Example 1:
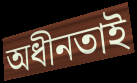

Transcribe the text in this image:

অধীনতাই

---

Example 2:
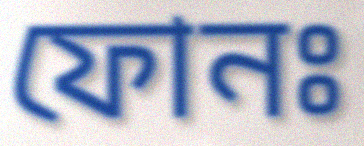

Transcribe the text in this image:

ফোনঃ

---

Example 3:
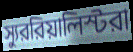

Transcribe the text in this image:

স্যুররিয়ালিস্টরা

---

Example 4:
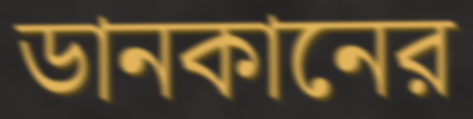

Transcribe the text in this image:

ডানকানের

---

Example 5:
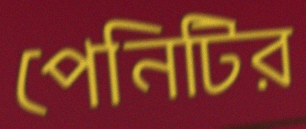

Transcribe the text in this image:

পেনিটির